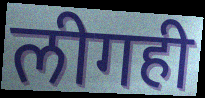
लीगही